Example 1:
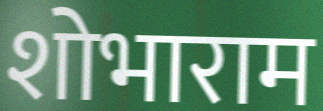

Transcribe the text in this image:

शोभाराम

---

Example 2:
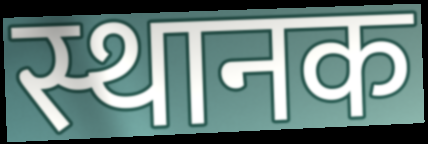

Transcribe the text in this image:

स्थानक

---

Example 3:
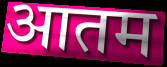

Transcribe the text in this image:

आतम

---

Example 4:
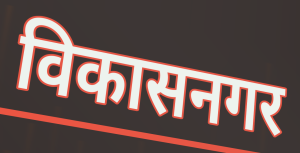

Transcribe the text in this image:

विकासनगर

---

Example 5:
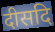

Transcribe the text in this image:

दीसदि